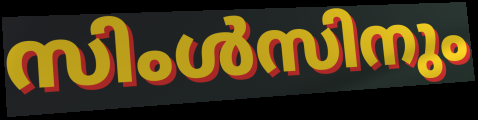
സിംൾസിനും